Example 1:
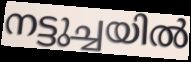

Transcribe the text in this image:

നട്ടുച്ചയിൽ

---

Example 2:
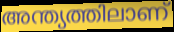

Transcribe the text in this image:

അന്ത്യത്തിലാണ്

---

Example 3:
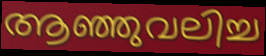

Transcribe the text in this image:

ആഞ്ഞുവലിച്ച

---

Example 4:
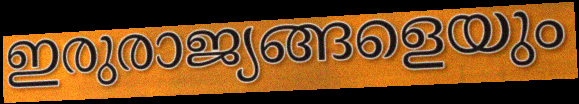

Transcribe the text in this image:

ഇരുരാജ്യങ്ങളെയും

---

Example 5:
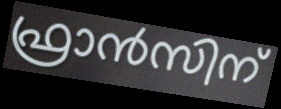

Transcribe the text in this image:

ഫ്രാൻസിന്